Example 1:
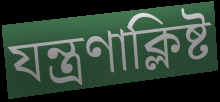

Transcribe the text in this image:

যন্ত্রণাক্লিষ্ট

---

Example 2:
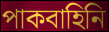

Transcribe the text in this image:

পাকবাহিনি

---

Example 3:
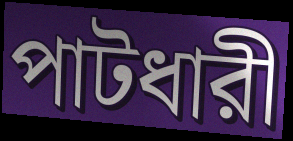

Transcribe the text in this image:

পাটধারী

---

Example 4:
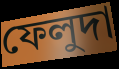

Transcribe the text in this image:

ফেলুদা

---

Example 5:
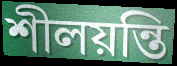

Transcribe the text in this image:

শীলয়ন্তি